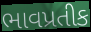
ભાવપ્રતીક